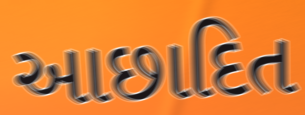
આછાદિત